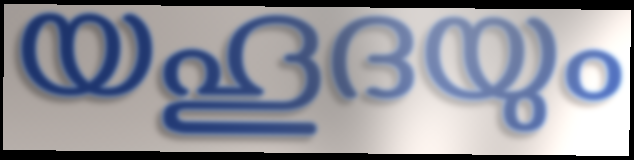
യഹൂദയും